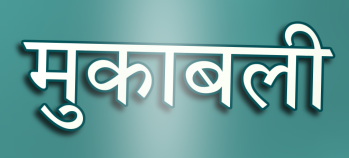
मुकाबली